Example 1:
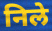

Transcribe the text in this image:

निले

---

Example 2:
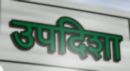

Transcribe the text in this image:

उपदिशा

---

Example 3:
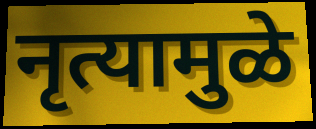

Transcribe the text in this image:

नृत्यामुळे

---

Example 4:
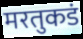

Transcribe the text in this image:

मरतुकडं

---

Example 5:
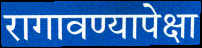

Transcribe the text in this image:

रागावण्यापेक्षा